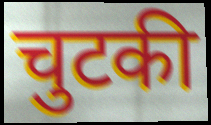
चुटकी